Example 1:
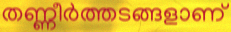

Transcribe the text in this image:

തണ്ണീർത്തടങ്ങളാണ്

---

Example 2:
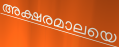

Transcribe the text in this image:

അക്ഷരമാലയെ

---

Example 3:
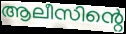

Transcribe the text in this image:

ആലീസിന്റെ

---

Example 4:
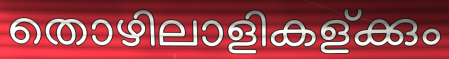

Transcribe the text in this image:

തൊഴിലാളികള്ക്കും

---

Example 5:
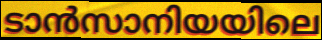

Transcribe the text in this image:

ടാൻസാനിയയിലെ